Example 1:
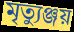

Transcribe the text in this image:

মৃত্যুঞ্জয়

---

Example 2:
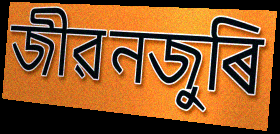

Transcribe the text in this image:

জীৱনজুৰি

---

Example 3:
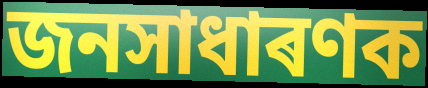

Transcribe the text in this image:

জনসাধাৰণক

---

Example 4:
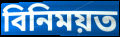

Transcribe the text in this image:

বিনিময়ত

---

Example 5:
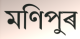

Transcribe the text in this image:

মণিপুৰ